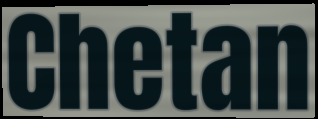
Chetan